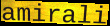
amirali